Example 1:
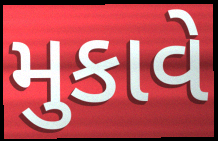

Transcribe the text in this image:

મુકાવે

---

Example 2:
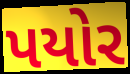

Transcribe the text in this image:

પયોર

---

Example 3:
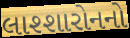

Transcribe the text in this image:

લાશ્શારોનનો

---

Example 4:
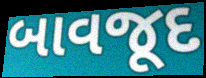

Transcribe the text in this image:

બાવજૂદ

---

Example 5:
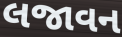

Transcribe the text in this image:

લજાવન